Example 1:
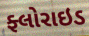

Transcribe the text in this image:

ફ્લોરાઇડ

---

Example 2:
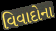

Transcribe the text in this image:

વિવાદોના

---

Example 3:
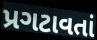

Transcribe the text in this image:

પ્રગટાવતાં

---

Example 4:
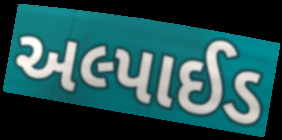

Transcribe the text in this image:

અલ્પાઈડ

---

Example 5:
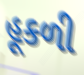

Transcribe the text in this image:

હૂકળી